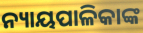
ନ୍ୟାୟପାଳିକାଙ୍କ